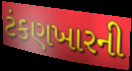
ટંકણખારની